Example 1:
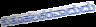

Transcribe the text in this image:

ಕುತೂಹಲಕರವಾದುದು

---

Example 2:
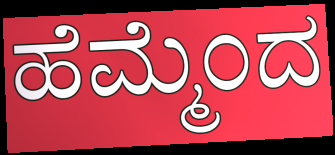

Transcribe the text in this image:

ಹೆಮ್ಮೆಂದ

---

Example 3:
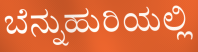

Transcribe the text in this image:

ಬೆನ್ನುಹುರಿಯಲ್ಲಿ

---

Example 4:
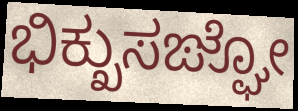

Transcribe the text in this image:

ಭಿಕ್ಖುಸಙ್ಘೋ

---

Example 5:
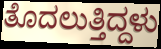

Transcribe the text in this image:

ತೊದಲುತ್ತಿದ್ದಳು